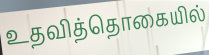
உதவித்தொகையில்